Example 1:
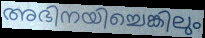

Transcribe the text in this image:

അഭിനയിച്ചെങ്കിലും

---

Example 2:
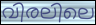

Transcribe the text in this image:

വിരലിലെ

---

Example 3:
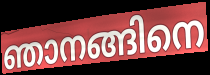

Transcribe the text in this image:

ഞാനങ്ങിനെ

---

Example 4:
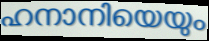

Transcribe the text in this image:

ഹനാനിയെയും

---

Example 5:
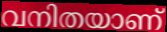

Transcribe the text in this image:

വനിതയാണ്